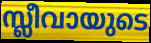
സ്ലീവായുടെ